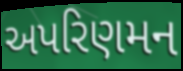
અપરિણમન